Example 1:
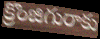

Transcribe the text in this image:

క్రొంజిగురాకు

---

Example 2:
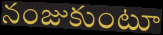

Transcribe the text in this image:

నంజుకుంటూ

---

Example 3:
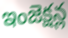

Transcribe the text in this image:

ఇంజెక్షన్ల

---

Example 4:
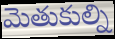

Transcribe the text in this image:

మెతుకుల్ని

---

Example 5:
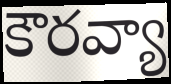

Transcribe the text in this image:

కౌరవ్యా